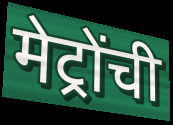
मेट्रोंची